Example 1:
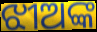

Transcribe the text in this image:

ଝୀଅଙ୍କ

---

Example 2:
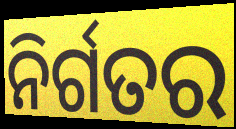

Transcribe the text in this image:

ନିର୍ଗତର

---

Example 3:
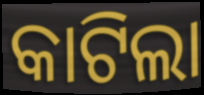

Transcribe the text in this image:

କାଟିଲା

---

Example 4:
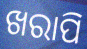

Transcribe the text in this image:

ଖରାପି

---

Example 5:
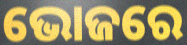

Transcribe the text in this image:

ଭୋଜରେ